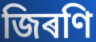
জিৰণি